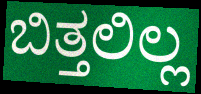
ಬಿತ್ತಲಿಲ್ಲ